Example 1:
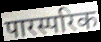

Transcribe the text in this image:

पारस्परिक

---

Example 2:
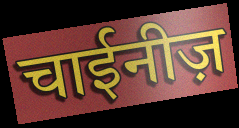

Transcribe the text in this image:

चाईनीज़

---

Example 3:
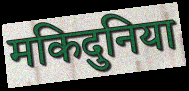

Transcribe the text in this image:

मकिदुनिया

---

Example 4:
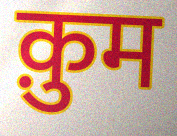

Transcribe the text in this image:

क़ुम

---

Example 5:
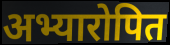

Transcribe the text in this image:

अभ्यारोपित